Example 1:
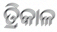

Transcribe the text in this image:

ତ୍ରିକାଳ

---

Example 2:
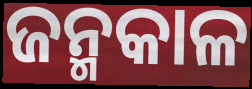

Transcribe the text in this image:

ଜନ୍ମକାଳ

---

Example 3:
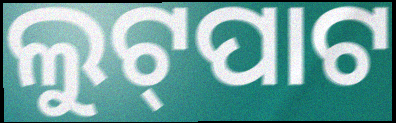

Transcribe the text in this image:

ଲୁଟ୍‍ପାଟ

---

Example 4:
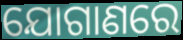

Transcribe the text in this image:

ଯୋଗାଣରେ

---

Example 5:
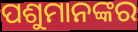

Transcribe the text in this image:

ପଶୁମାନଙ୍କର